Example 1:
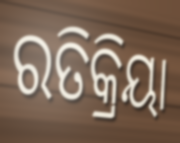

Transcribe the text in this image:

ରତିକ୍ରିୟା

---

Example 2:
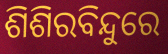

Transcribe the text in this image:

ଶିଶିରବିନ୍ଦୁରେ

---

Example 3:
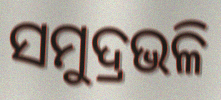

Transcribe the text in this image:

ସମୁଦ୍ରଭଳି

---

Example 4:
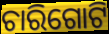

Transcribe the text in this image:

ଚାରିଗୋଟି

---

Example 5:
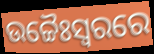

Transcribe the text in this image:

ଉଚ୍ଚୈଃସ୍ୱରରେ